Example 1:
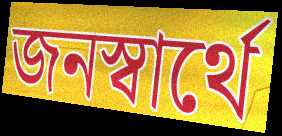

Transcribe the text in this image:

জনস্বার্থে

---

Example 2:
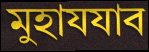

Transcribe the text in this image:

মুহাযযাব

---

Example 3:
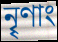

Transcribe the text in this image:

নৄণাং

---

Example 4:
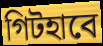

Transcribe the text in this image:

গিটহাবে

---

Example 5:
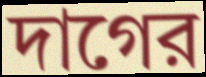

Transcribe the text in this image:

দাগের